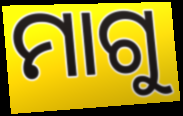
ମାଗୁ